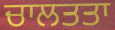
ਚਾਲਤਤਾ